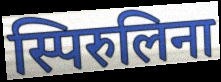
स्पिरुलिना